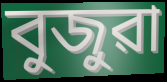
বুজুৱা